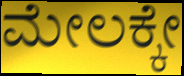
ಮೇಲಕ್ಕೇ